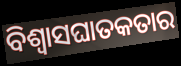
ବିଶ୍ୱାସଘାତକତାର